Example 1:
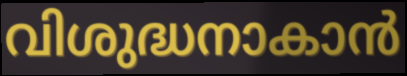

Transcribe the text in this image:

വിശുദ്ധനാകാൻ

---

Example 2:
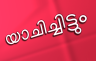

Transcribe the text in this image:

യാചിച്ചിട്ടും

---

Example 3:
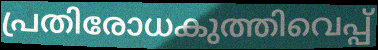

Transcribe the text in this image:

പ്രതിരോധകുത്തിവെപ്പ്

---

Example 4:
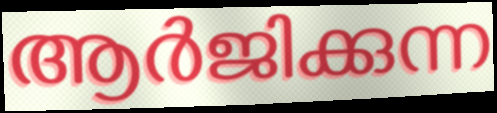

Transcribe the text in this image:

ആർജിക്കുന്ന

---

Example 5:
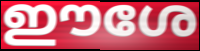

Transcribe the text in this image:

ഈശേ